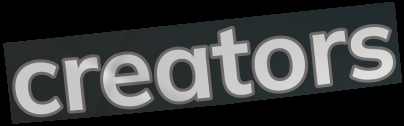
creators